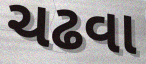
ચઢવા